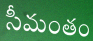
సీమంతం